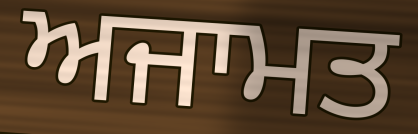
ਅਜਾਮਤ